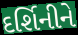
દર્શિનીને